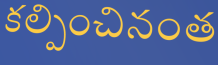
కల్పించినంత